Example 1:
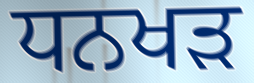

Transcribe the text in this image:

ਧਨਖੜ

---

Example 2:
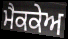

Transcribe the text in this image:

ਮੈਕਕੇਅ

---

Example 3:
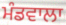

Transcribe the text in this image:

ਮੰਡਵਾਲਾ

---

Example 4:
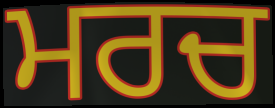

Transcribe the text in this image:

ਮਰਚ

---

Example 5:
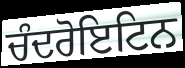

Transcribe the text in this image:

ਚੰਦਰੋਇਟਿਨ